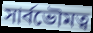
সাৰ্বভৌমত্ব